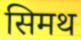
सिमथ